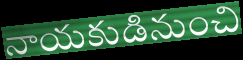
నాయకుడినుంచి